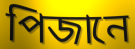
পিজানে